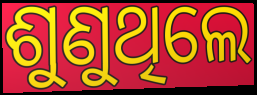
ଶୁଣୁଥିଲେ